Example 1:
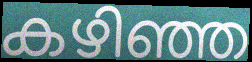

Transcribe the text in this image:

കഴിഞ്ഞ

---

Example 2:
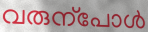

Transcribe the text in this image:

വരുന്പോൾ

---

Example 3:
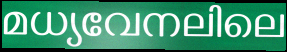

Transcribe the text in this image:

മധ്യവേനലിലെ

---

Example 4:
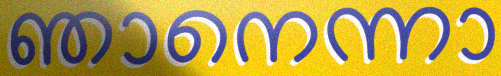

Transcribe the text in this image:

ഞാനെന്നാ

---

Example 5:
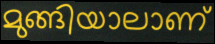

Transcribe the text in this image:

മുങ്ങിയാലാണ്